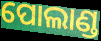
ପୋଲାଣ୍ଡ